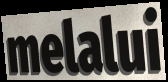
melalui